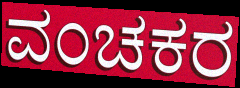
ವಂಚಕರ